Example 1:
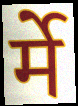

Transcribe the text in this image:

र्मे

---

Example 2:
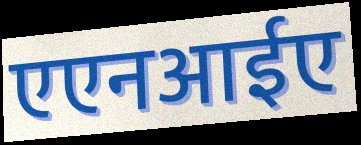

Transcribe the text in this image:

एएनआईए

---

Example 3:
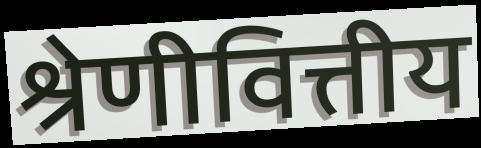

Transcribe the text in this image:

श्रेणीवित्तीय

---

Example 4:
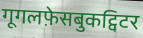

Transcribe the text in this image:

गूगलफ़ेसबुकट्विटर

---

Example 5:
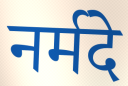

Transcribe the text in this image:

नर्मदे